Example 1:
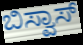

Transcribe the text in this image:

ಬಿಸ್ವಾಸ್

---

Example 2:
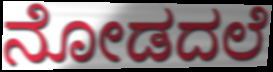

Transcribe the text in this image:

ನೋಡದಲೆ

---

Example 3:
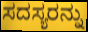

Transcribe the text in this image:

ಸದಸ್ಯರನ್ನು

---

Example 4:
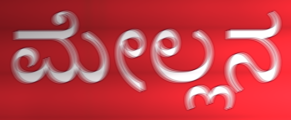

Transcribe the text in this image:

ಮೇಲ್ಲನ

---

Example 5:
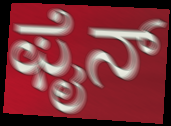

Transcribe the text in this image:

ಫೈನ್